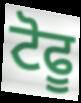
ਟੋਫੂ